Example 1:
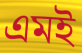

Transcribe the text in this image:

এমই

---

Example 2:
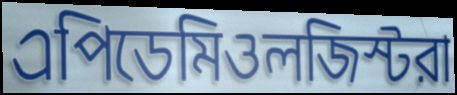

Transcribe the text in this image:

এপিডেমিওলজিস্টরা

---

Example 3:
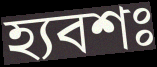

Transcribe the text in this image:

হ্যবশঃ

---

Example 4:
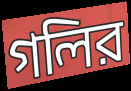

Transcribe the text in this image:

গলির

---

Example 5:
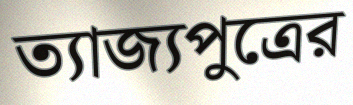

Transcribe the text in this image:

ত্যাজ্যপুত্রের